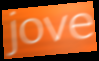
jove